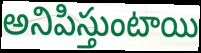
అనిపిస్తుంటాయి